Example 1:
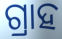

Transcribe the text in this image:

ଗ୍ରାହ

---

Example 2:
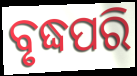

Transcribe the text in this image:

ବୃଦ୍ଧପରି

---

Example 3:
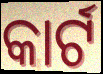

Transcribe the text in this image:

କାର୍ଟ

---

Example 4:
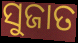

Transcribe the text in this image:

ସୁଜାତ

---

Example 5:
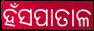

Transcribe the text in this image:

ହଁସପାତାଳ